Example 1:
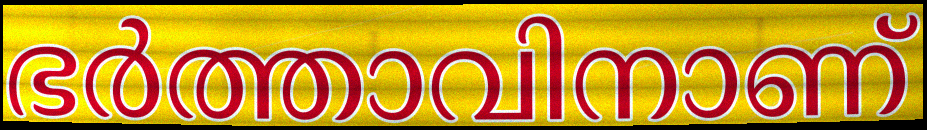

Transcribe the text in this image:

ഭർത്താവിനാണ്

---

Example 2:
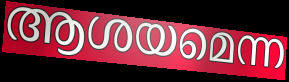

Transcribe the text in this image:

ആശയമെന്ന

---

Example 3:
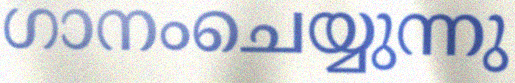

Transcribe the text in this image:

ഗാനംചെയ്യുന്നു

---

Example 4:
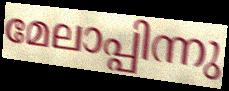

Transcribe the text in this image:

മേലാപ്പിന്നു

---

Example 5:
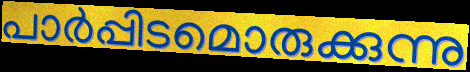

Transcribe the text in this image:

പാർപ്പിടമൊരുക്കുന്നു